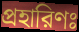
প্রহারিণঃ